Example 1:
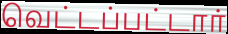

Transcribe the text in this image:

வெட்டப்பட்டார்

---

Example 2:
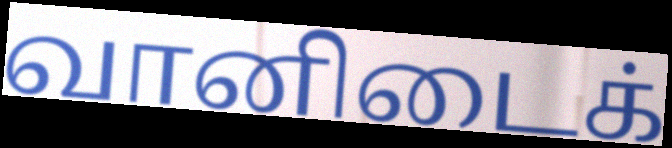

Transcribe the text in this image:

வானிடைக்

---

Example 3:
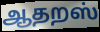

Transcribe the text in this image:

ஆதறஸ்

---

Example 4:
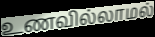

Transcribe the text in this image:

உணவில்லாமல்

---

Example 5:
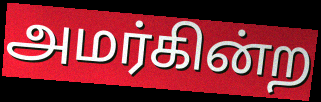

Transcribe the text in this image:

அமர்கின்ற